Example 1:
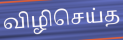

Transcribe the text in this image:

விழிசெய்த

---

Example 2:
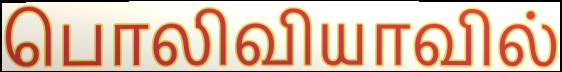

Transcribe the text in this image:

பொலிவியாவில்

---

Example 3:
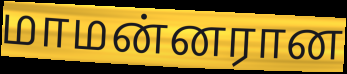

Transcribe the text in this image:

மாமன்னரான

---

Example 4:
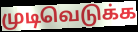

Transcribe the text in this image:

முடிவெடுக்க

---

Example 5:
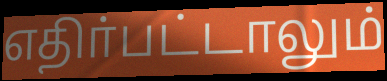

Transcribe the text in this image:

எதிர்பட்டாலும்